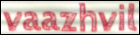
vaazhvil